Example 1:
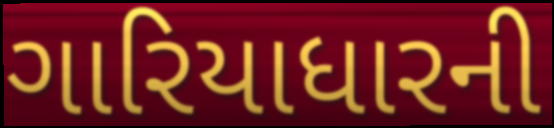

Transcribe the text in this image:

ગારિયાધારની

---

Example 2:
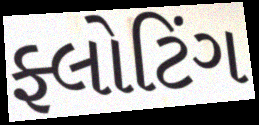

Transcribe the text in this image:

ફ્લોટિંગ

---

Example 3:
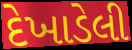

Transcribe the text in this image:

દેખાડેલી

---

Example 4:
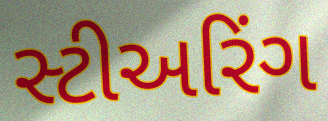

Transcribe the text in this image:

સ્ટીઅરિંગ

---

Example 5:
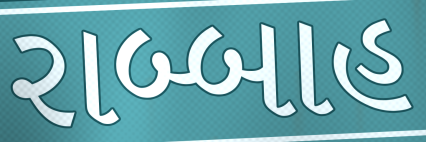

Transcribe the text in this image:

રાબ્બાહ